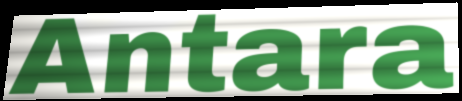
Antara